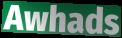
Awhads